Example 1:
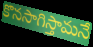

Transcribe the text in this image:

కొనసాగిస్తామనే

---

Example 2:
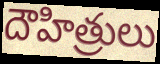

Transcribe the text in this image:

దౌహిత్రులు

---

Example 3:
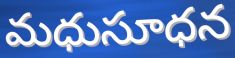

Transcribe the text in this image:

మధుసూధన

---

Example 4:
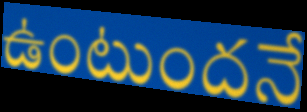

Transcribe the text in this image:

ఉంటుందనే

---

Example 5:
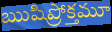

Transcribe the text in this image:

ఋషిప్రోక్తమూ